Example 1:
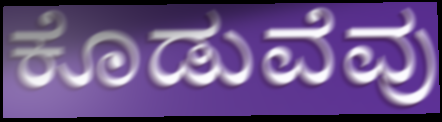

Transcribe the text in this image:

ಕೊಡುವೆವು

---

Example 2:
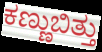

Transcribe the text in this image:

ಕಣ್ಣುಬಿತ್ತು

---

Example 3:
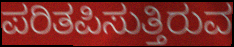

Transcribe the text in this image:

ಪರಿತಪಿಸುತ್ತಿರುವ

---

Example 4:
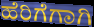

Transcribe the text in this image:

ಹೆರಿಗೆಗಾಗಿ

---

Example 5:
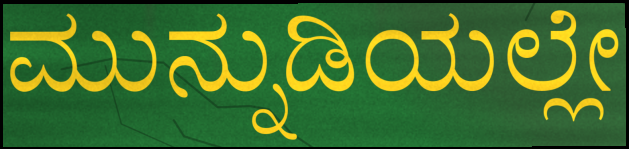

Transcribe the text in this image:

ಮುನ್ನುಡಿಯಲ್ಲೇ